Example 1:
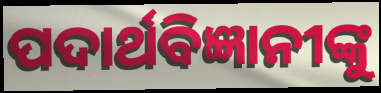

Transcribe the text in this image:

ପଦାର୍ଥବିଜ୍ଞାନୀଙ୍କୁ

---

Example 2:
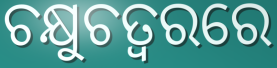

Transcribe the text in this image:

ଚକ୍ଷୁଚତ୍ୱରରେ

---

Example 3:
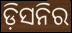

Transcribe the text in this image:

ଡ଼ିସନିର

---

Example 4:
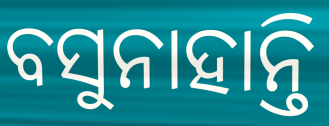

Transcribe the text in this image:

ବସୁନାହାନ୍ତି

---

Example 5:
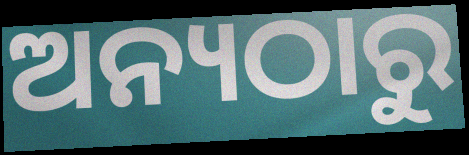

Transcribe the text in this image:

ଅନ୍ୟଠାରୁ